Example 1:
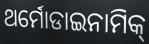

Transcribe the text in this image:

ଥର୍ମୋଡାଇନାମିକ୍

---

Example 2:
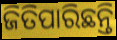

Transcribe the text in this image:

ଜିତିପାରିଛନ୍ତି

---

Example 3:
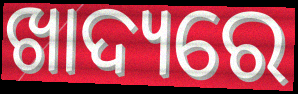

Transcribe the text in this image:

ଖାଦ୍ୟରେ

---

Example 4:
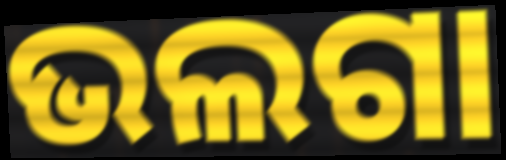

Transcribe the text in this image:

ଭଲଗା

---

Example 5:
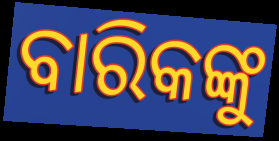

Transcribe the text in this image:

ବାରିକଙ୍କୁ